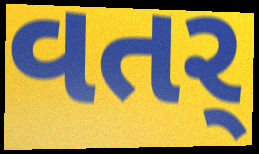
વતર્